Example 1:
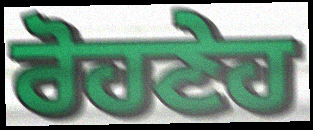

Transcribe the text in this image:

ਰੋਹਣੇਹ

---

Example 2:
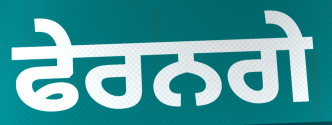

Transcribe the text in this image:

ਫੇਰਨਗੇ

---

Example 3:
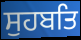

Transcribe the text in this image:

ਸੁਹਬਤਿ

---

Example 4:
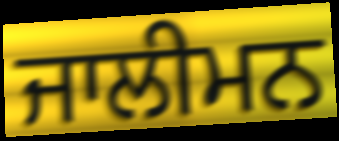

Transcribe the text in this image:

ਜਾਲੀਮਨ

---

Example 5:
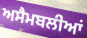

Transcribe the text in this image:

ਅਸੈਮਬਲੀਆਂ